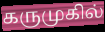
கருமுகில்